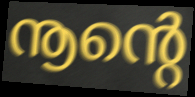
നൂന്റെ